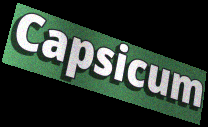
Capsicum